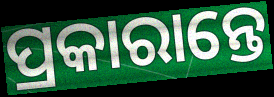
ପ୍ରକାରାନ୍ତେ